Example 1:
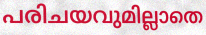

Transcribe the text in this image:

പരിചയവുമില്ലാതെ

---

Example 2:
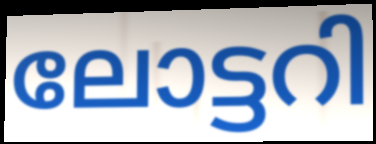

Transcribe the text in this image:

ലോട്ടറി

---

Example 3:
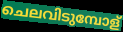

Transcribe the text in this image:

ചെലവിടുമ്പോള്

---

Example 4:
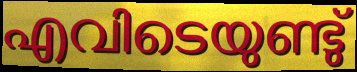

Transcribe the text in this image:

എവിടെയുണ്ടു്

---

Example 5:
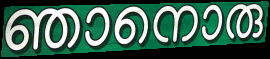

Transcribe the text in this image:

ഞാനൊരു